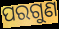
ପରଗୁଣ